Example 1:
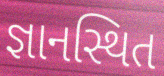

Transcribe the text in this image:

જ્ઞાનસ્થિત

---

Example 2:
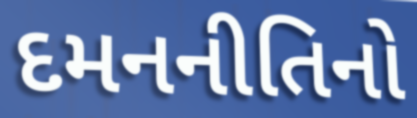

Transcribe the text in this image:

દમનનીતિનો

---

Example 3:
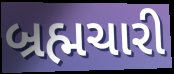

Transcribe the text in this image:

બ્રહ્મચારી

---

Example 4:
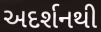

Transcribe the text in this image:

અદર્શનથી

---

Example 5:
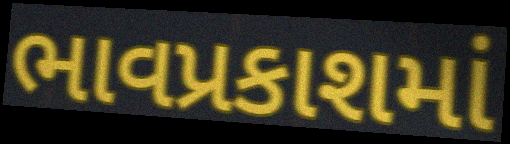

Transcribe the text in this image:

ભાવપ્રકાશમાં